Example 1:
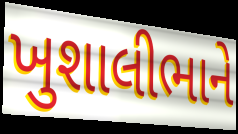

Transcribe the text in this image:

ખુશાલીભાને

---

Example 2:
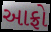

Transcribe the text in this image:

આફ્રો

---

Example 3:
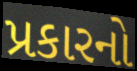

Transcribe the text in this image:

પ્રકારનો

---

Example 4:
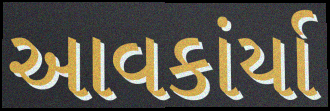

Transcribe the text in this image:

આવકાંર્યા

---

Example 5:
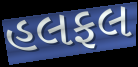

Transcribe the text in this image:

હલફલ